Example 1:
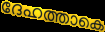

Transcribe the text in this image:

ദേഹത്താകെ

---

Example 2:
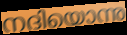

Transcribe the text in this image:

നദിയൊന്നു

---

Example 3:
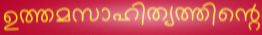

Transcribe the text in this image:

ഉത്തമസാഹിത്യത്തിന്റെ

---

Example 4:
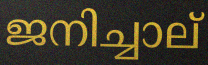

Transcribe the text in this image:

ജനിച്ചാല്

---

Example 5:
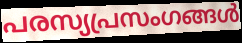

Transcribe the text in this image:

പരസ്യപ്രസംഗങ്ങൾ